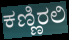
ಕಣ್ಣಿರಲಿ